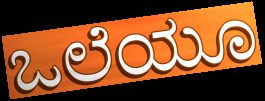
ಒಲೆಯೂ